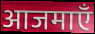
आजमाएँ